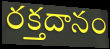
రక్తదానం